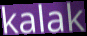
kalak